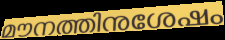
മൗനത്തിനുശേഷം